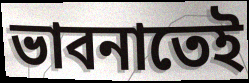
ভাবনাতেই